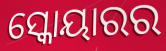
ସ୍କୋୟାରର